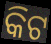
କିଟ